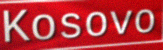
Kosovo